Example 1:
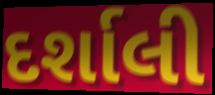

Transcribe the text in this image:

દર્શાલી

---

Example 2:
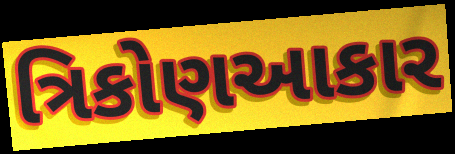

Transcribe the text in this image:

ત્રિકોણઆકાર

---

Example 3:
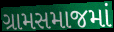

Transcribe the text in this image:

ગ્રામસમાજમાં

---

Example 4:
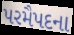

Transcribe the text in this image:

પરમૈપદના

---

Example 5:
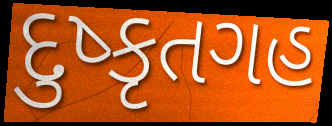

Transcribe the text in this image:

દુષ્કૃતગહ